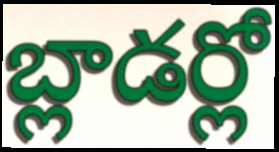
బ్లాడర్లో